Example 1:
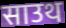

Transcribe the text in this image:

साउथ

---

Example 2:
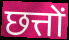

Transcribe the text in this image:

छत्तों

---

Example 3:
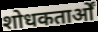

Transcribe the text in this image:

शोधकतार्ओं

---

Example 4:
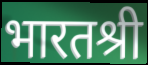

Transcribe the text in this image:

भारतश्री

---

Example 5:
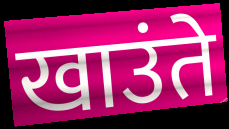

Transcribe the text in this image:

खाउंते